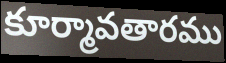
కూర్మావతారము